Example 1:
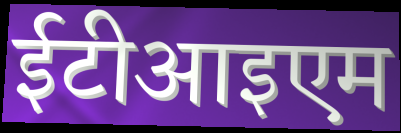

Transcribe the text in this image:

ईटीआइएम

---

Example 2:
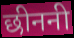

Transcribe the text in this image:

छीननी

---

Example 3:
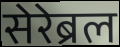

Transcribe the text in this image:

सेरेब्रल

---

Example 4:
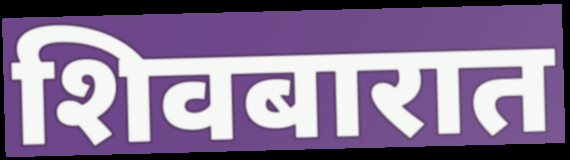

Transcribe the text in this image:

शिवबारात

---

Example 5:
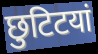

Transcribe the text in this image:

छुटिटयां